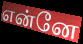
என்னே